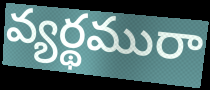
వ్యర్థమురా